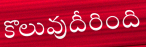
కొలువుదీరింది